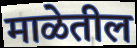
माळेतील